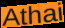
Athai